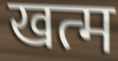
खत्‍म